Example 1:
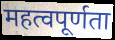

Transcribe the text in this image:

महत्वपूर्णता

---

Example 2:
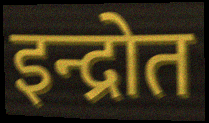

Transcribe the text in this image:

इन्द्रोत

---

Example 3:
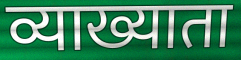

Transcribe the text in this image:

व्याख्याता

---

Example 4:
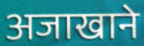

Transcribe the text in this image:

अजाखाने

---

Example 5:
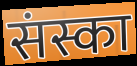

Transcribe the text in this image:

संस्का